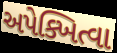
અપેક્ખિત્વા